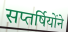
सप्तर्षियोंने